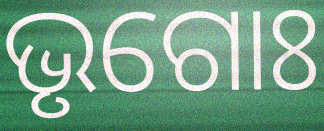
ଭୃଗୋଃ